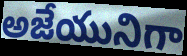
అజేయునిగా